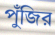
পুঁজির